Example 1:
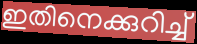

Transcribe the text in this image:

ഇതിനെക്കുറിച്ച്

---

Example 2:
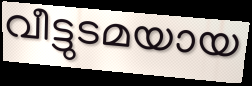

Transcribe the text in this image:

വീട്ടുടമയായ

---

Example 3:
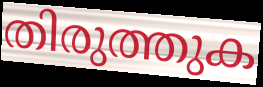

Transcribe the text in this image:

തിരുത്തുക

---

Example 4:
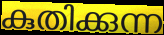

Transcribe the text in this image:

കുതിക്കുന്ന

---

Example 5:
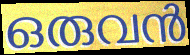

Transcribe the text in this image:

ഒരുവൻ